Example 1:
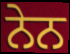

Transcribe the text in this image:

ਨੇਨ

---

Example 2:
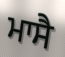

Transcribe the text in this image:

ਮਾਸੈ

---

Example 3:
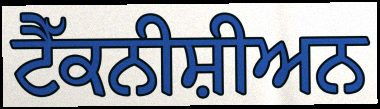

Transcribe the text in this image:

ਟੈੱਕਨੀਸ਼ੀਅਨ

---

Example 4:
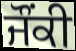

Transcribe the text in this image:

ਜੌਂਕੀ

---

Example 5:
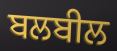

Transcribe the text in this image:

ਬਲਬੀਲ